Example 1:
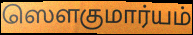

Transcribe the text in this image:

ஸௌகுமார்யம்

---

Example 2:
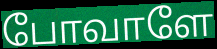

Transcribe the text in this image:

போவாளே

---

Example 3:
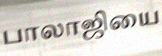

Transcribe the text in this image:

பாலாஜியை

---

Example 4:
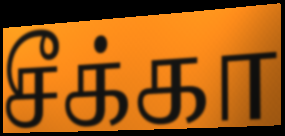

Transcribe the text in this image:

சீக்கா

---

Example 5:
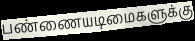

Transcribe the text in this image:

பண்ணையடிமைகளுக்கு